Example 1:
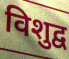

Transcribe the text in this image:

विशुद्व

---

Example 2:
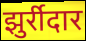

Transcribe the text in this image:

झुर्रीदार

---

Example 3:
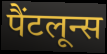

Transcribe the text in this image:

पैंटलून्स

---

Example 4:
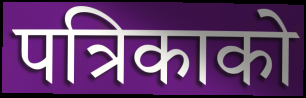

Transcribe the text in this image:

पत्रिकाको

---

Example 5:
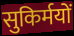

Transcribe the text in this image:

सुकिर्मयों